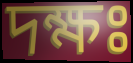
দক্ষঃ